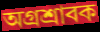
অগ্রশ্রাবক